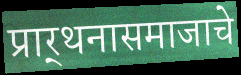
प्रार्थनासमाजाचे